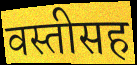
वस्तीसह